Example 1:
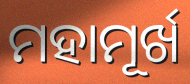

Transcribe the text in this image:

ମହାମୂର୍ଖ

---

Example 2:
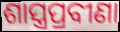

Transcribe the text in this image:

ଶାସ୍ତ୍ରପ୍ରବୀଣା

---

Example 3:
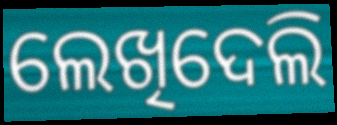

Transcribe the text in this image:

ଲେଖିଦେଲି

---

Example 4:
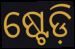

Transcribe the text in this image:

ଷ୍ଟେଡ଼ି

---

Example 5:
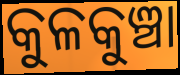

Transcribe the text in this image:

କୁଳକୁଞ୍ଚା